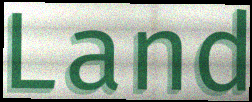
Land